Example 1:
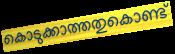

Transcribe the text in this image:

കൊടുക്കാത്തതുകൊണ്ട്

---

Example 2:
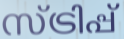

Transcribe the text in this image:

സ്ട്രിപ്പ്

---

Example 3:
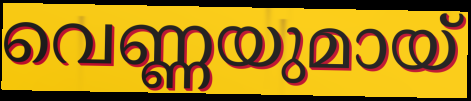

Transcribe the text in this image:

വെണ്ണയുമായ്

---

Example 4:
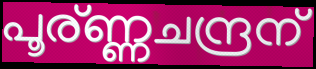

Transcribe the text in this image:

പൂര്ണ്ണചന്ദ്രന്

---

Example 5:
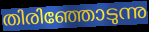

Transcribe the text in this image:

തിരിഞ്ഞോടുന്നു